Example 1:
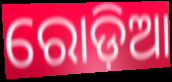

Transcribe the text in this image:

ରୋଡ଼ିଆ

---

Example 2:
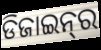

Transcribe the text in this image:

ଡିଜାଇନ୍‌ର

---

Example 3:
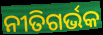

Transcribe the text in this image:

ନୀତିଗର୍ଭକ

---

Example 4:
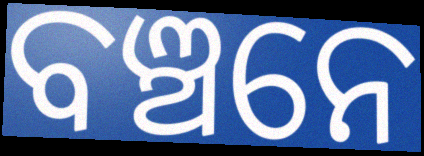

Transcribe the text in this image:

ବଞ୍ଚନେ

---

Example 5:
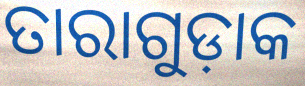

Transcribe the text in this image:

ତାରାଗୁଡ଼ାକ